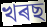
খৰছ